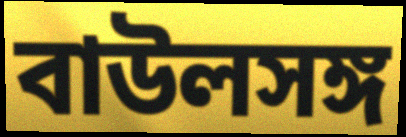
বাউলসঙ্গ